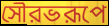
সৌরভরূপে